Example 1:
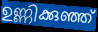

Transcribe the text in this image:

ഉണ്ണിക്കുഞ്ഞ്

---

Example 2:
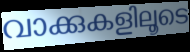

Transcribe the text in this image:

വാക്കുകളിലൂടെ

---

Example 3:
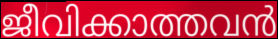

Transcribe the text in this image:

ജീവിക്കാത്തവൻ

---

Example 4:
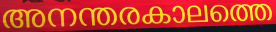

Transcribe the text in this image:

അനന്തരകാലത്തെ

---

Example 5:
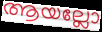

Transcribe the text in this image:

ആയല്ലോ